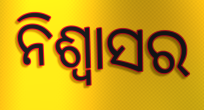
ନିଶ୍ବାସର